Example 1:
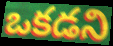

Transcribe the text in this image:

ఒకడని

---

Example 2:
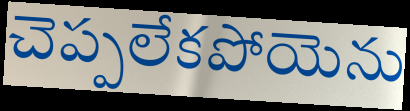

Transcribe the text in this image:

చెప్పలేకపోయెను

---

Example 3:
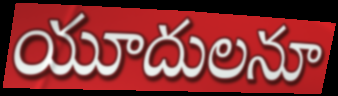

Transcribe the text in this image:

యూదులనూ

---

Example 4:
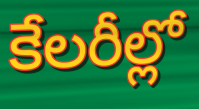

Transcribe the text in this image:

కేలరీల్లో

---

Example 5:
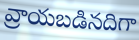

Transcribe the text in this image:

వ్రాయబడినదిగా